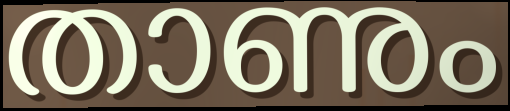
താണും